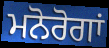
ਮਨੋਰੋਗਾਂ